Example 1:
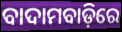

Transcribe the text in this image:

ବାଦାମବାଡ଼ିରେ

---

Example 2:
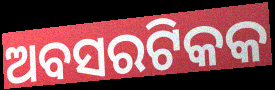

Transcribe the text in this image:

ଅବସରଟିକକ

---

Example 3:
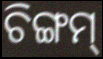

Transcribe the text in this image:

ଚିଙ୍ଗମ୍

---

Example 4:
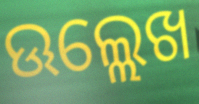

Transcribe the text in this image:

ଊଲ୍ଲେଖ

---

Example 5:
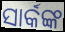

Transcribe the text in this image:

ସାର୍କଙ୍କ